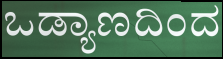
ಒಡ್ಯಾಣದಿಂದ